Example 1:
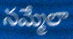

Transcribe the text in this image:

నమ్మేలా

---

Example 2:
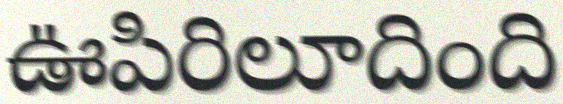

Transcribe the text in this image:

ఊపిరిలూదింది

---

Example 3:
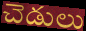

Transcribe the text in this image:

చెడులు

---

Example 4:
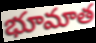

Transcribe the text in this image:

భూమాత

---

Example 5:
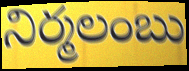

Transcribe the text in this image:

నిర్మలంబు